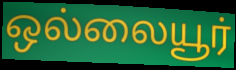
ஒல்லையூர்